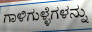
ಗಾಳಿಗುಳ್ಳೆಗಳನ್ನು